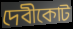
দেবীকোট